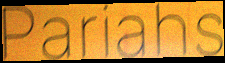
Pariahs